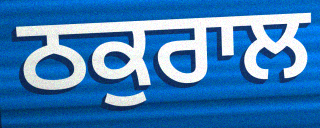
ਠਕੁਰਾਲ